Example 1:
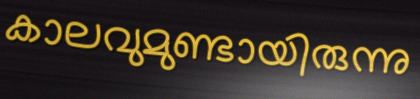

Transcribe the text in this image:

കാലവുമുണ്ടായിരുന്നു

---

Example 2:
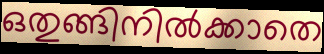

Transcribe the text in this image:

ഒതുങ്ങിനിൽക്കാതെ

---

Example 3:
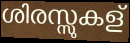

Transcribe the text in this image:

ശിരസ്സുകള്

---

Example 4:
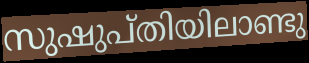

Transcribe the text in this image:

സുഷുപ്തിയിലാണ്ടു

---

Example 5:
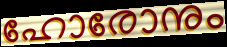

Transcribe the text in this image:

ഹോരോനും